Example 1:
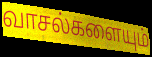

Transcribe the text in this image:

வாசல்களையும்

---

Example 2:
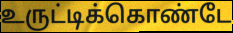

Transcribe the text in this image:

உருட்டிக்கொண்டே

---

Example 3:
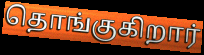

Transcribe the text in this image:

தொங்குகிறார்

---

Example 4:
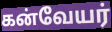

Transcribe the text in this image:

கன்வேயர்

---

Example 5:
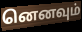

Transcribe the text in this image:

னெனவும்